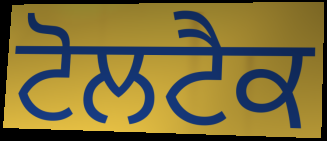
ਟੋਲਟੈਕ